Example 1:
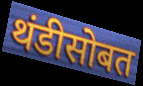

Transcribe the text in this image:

थंडीसोबत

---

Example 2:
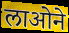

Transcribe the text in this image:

लाओने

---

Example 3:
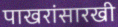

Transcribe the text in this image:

पाखरांसारखी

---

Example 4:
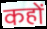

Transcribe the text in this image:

कहों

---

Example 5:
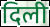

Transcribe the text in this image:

दिली